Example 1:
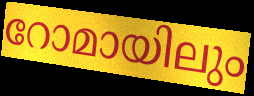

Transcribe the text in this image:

റോമായിലും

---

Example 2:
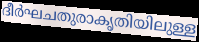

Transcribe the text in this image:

ദീർഘചതുരാകൃതിയിലുള്ള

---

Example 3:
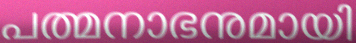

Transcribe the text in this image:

പത്മനാഭനുമായി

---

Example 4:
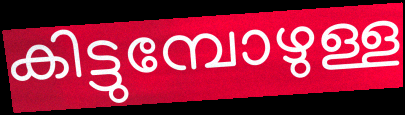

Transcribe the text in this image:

കിട്ടുമ്പോഴുള്ള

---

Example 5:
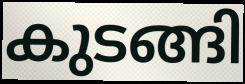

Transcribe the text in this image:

കുടങ്ങി